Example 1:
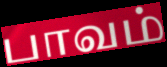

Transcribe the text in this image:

பாவம்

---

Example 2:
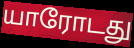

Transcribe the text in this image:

யாரோடது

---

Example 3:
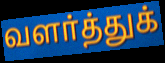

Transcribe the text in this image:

வளர்த்துக்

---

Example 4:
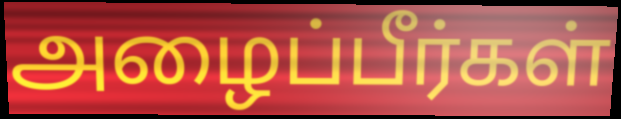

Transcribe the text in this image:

அழைப்பீர்கள்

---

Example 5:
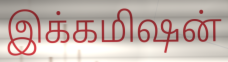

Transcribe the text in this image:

இக்கமிஷன்